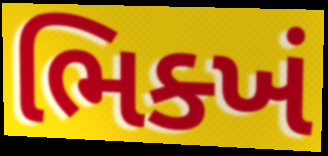
ભિક્ખં